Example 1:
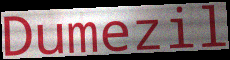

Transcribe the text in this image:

Dumezil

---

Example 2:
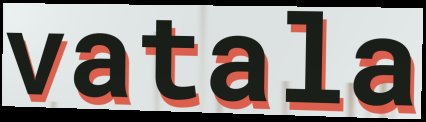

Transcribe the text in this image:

vatala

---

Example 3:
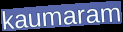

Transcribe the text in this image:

kaumaram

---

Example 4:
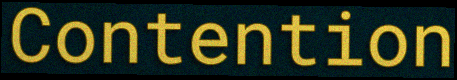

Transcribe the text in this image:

Contention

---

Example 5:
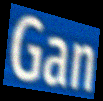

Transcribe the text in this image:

Gan